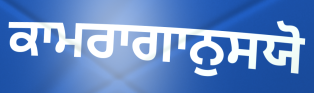
ਕਾਮਰਾਗਾਨੁਸਯੋ